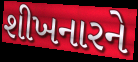
શીખનારને